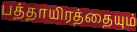
பத்தாயிரத்தையும்